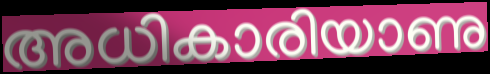
അധികാരിയാണു